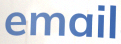
email